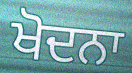
ਖੋਦਨਾ